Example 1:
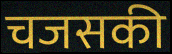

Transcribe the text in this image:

चजसकी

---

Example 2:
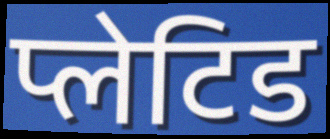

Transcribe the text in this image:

प्लेटिड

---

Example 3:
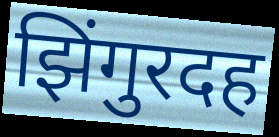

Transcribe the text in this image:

झिंगुरदह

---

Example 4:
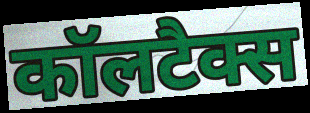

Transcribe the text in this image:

कॉलटैक्स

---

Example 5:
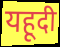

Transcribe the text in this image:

यहूदी